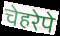
चेहरेपे